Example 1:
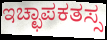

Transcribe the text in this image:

ಇಚ್ಛಾಪಕತಸ್ಸ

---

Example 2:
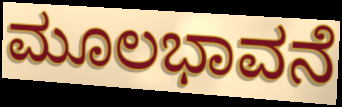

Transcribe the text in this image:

ಮೂಲಭಾವನೆ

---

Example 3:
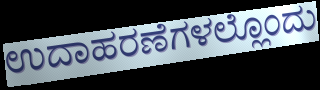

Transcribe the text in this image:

ಉದಾಹರಣೆಗಳಲ್ಲೊಂದು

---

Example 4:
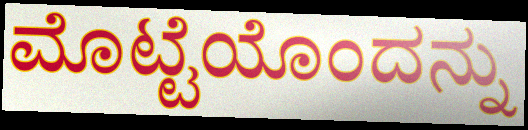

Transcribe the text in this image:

ಮೊಟ್ಟೆಯೊಂದನ್ನು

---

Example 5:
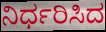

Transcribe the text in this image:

ನಿರ್ಧರಿಸಿದ